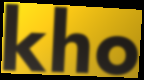
kho